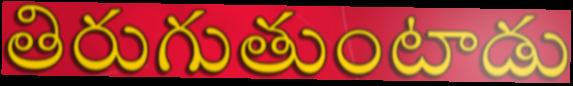
తిరుగుతుంటాడు